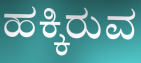
ಹಕ್ಕಿರುವ